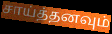
சாய்த்தனவும்